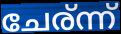
ചേര്ന്ന്